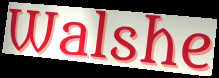
Walshe